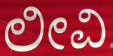
ಲೀವಿ